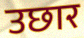
उछार